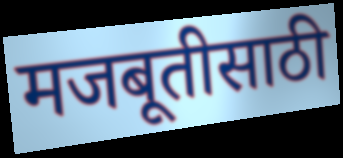
मजबूतीसाठी